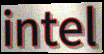
intel